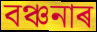
বঞ্চনাৰ